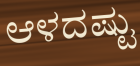
ಆಳದಷ್ಟು